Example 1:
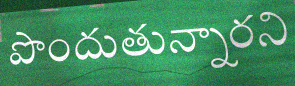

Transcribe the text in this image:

పొందుతున్నారని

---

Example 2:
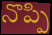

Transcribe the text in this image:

నొప్పి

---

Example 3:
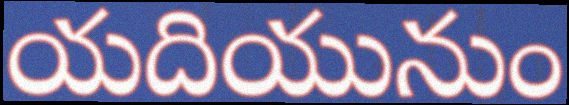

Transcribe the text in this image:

యదియునుం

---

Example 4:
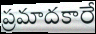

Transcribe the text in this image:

ప్రమాదకారే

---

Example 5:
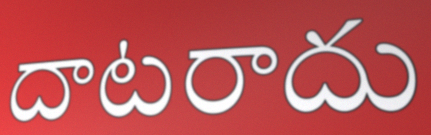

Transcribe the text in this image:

దాటరాదు